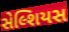
સેલ્શિયસ